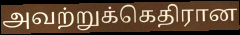
அவற்றுக்கெதிரான